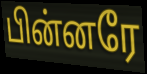
பின்னரே